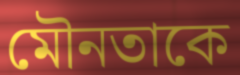
মৌনতাকে